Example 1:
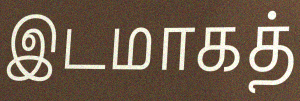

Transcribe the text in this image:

இடமாகத்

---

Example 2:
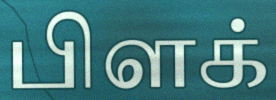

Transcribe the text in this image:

பிளக்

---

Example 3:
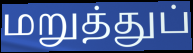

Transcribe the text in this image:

மறுத்துப்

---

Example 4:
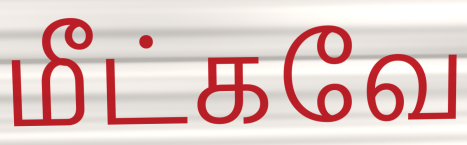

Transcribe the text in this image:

மீட்கவே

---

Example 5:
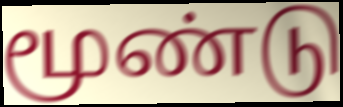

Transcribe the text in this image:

மூண்டு